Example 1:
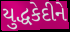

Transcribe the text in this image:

યુદ્ધકેદીને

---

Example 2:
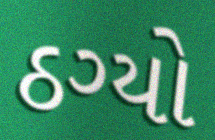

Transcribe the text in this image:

ઠગ્યો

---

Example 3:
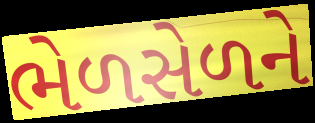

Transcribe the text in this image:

ભેળસેળને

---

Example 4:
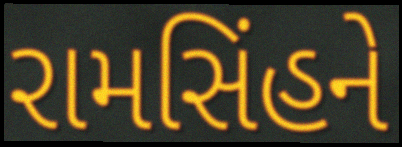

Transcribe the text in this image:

રામસિંહને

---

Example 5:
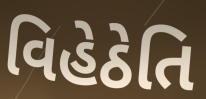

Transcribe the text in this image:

વિહેઠેતિ